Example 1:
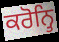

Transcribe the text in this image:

ਕਰੋਨ੍ਤਿ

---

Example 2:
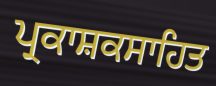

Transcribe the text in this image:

ਪ੍ਰਕਾਸ਼ਕਸਾਹਿਤ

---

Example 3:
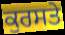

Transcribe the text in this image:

ਕੁਰਸਤੇ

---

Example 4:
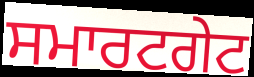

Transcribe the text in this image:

ਸਮਾਰਟਗੇਟ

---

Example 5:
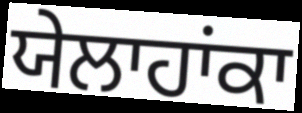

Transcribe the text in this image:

ਯੇਲਾਹਾਂਕਾ